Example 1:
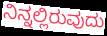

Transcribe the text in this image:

ನಿನ್ನಲ್ಲಿರುವುದು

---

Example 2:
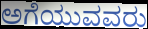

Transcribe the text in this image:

ಅಗೆಯುವವರು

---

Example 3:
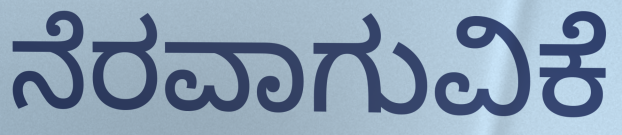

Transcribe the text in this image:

ನೆರವಾಗುವಿಕೆ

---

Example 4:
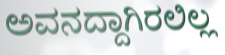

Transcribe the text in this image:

ಅವನದ್ದಾಗಿರಲಿಲ್ಲ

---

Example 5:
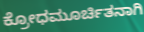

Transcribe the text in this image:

ಕ್ರೋಧಮೂರ್ಚಿತನಾಗಿ